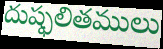
దుష్ఫలితములు